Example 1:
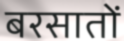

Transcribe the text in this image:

बरसातों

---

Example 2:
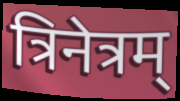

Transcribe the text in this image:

त्रिनेत्रम्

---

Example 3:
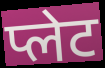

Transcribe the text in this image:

प्लेट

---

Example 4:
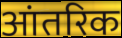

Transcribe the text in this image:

आंतरिक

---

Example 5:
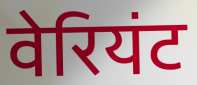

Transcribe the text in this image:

वेरियंट